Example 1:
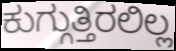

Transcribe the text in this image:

ಕುಗ್ಗುತ್ತಿರಲಿಲ್ಲ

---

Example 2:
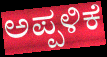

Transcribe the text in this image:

ಅಪ್ಪಳಿಕೆ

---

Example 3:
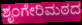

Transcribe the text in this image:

ಶೃಂಗೇರಿಮಠದ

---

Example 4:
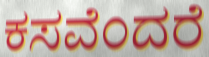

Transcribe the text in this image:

ಕಸವೆಂದರೆ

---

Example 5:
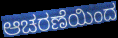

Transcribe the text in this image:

ಆಚರಣೆಯಿಂದ